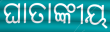
ଘାତାଙ୍କୀୟ